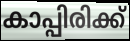
കാപ്പിരിക്ക്